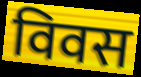
विवस